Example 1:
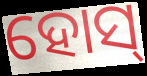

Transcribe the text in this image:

ହୋସ୍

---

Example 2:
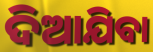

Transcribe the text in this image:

ଦିଆଯିବା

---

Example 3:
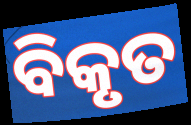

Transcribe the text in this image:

ବିକୃତ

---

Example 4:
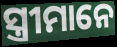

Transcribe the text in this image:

ସ୍ତ୍ରୀମାନେ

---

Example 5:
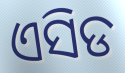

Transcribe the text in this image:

ଏସିଡ